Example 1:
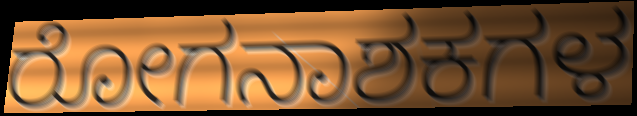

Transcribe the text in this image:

ರೋಗನಾಶಕಗಳ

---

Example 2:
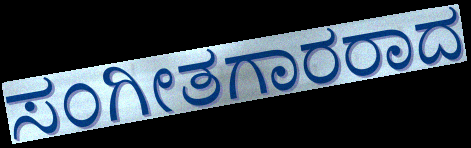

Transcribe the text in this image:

ಸಂಗೀತಗಾರರಾದ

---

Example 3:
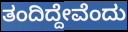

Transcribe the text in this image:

ತಂದಿದ್ದೇವೆಂದು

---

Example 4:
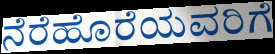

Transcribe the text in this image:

ನೆರೆಹೊರೆಯವರಿಗೆ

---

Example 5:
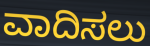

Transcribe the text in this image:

ವಾದಿಸಲು